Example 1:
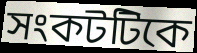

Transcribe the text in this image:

সংকটটিকে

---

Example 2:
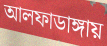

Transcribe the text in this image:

আলফাডাঙ্গায়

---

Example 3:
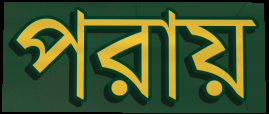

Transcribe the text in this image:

পরায়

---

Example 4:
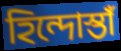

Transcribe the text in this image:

হিন্দোস্তাঁ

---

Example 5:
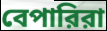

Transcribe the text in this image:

বেপারিরা